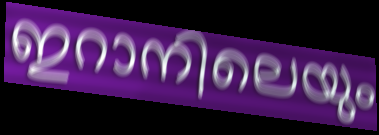
ഇറാനിലെയും